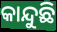
କାନ୍ଦୁଛି